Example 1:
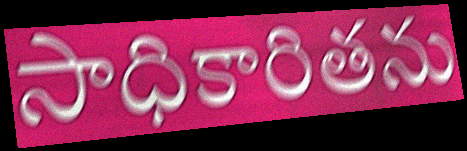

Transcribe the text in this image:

సాధికారితను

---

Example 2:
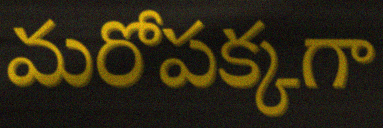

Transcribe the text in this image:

మరోపక్కగా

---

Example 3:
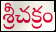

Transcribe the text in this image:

శ్రీచక్రం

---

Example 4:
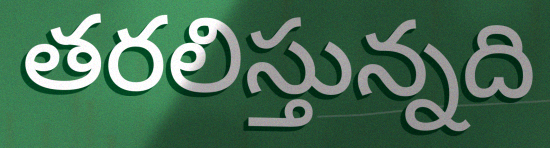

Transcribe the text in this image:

తరలిస్తున్నది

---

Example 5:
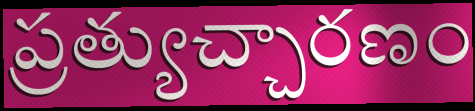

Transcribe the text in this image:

ప్రత్యుచ్చారణం